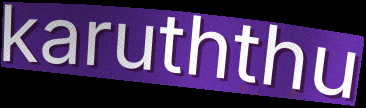
karuththu